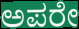
ಅಪರೇ